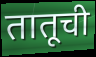
तातूची